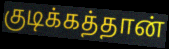
குடிக்கத்தான்